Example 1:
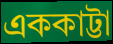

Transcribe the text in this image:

এককাট্টা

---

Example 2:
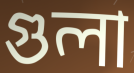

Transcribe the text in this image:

গুলা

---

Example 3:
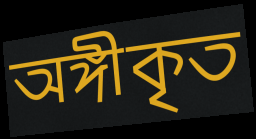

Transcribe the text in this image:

অঙ্গীকৃত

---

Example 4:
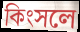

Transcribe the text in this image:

কিংসলে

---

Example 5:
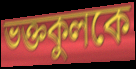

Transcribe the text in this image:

ভক্তকুলকে